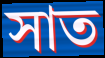
সাত